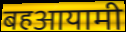
बहआयामी